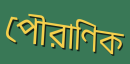
পৌরাণিক